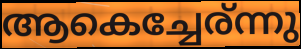
ആകെച്ചേര്ന്നു